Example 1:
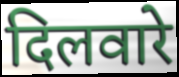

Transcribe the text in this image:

दिलवारे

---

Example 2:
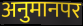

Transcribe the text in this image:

अनुमानपर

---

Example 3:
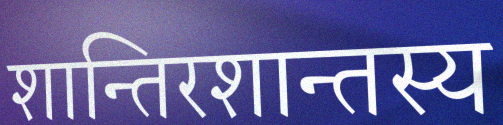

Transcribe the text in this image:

शान्तिरशान्तस्य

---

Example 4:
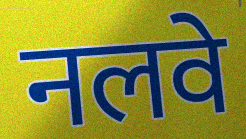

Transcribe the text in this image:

नलवे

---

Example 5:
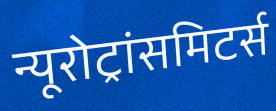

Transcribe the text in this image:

न्यूरोट्रांसमिटर्स